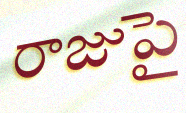
రాజుపై